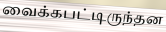
வைக்கபட்டிருந்தன